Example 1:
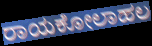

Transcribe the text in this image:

ರಾಯಕೋಲಾಹಲ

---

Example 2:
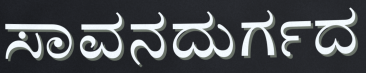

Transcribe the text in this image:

ಸಾವನದುರ್ಗದ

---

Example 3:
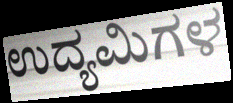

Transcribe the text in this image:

ಉದ್ಯಮಿಗಳ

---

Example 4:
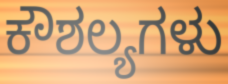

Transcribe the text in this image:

ಕೌಶಲ್ಯಗಳು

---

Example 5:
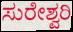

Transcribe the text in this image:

ಸುರೇಶ್ವರಿ